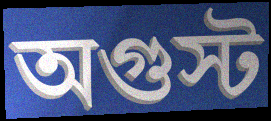
অগুস্ট